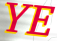
YE